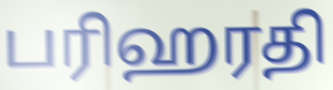
பரிஹரதி